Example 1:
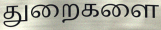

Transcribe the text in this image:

துறைகளை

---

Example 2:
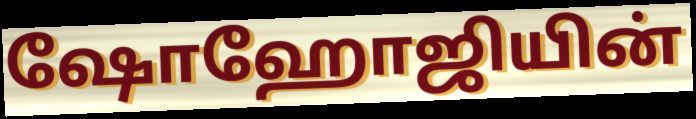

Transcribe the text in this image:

ஷோஹோஜியின்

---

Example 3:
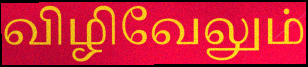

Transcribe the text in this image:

விழிவேலும்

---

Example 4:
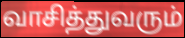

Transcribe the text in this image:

வாசித்துவரும்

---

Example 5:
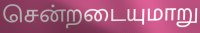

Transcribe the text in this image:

சென்றடையுமாறு